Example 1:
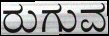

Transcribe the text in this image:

ರುಗುವ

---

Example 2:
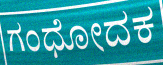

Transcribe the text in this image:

ಗಂಧೋದಕ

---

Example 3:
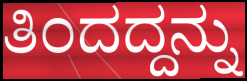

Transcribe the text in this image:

ತಿಂದದ್ದನ್ನು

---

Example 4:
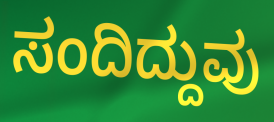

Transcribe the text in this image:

ಸಂದಿದ್ದುವು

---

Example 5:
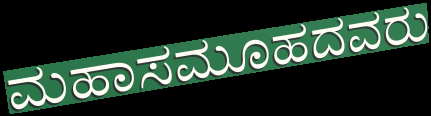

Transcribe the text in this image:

ಮಹಾಸಮೂಹದವರು